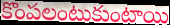
కొంపలంటుకుంటాయి